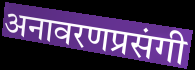
अनावरणप्रसंगी